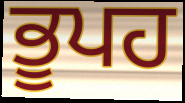
ਭੂਪਹ